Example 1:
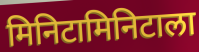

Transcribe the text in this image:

मिनिटामिनिटाला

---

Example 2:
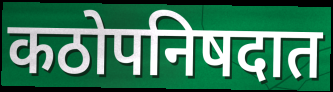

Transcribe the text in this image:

कठोपनिषदात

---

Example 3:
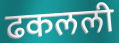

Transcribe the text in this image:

ढकलली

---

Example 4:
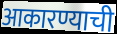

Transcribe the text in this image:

आकारण्याची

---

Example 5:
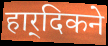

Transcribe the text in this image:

हार्दिकने